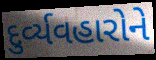
દુર્વ્યવહારોને